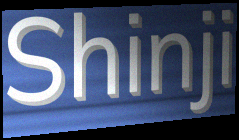
Shinji